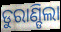
ଡୁରାଣ୍ଡିଲା